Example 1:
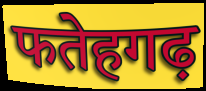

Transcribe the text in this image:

फतेहगढ़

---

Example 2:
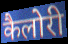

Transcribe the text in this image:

कैलोरी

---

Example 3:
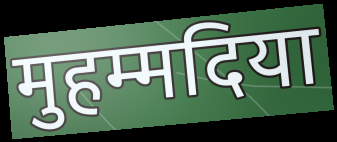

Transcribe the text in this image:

मुहम्मदिया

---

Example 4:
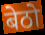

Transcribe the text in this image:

बेठो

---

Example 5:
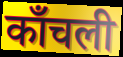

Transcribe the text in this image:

काँचली